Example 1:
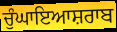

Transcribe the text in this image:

ਚੁੰਘਾਇਆਸ਼ਰਾਬ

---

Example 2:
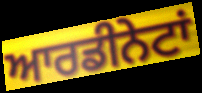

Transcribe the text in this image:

ਆਰਡੀਨੇਟਾਂ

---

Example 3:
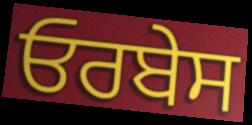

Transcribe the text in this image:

ਓਰਬੇਸ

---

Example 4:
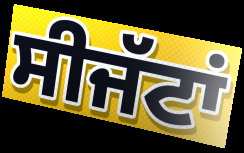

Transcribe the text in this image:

ਸੀਜੱਟਾਂ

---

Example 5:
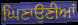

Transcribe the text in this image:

ਘਿਣਾਉਣੀਆਂ